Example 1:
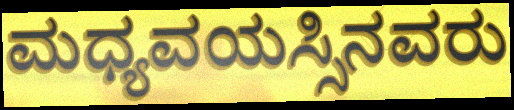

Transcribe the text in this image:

ಮಧ್ಯವಯಸ್ಸಿನವರು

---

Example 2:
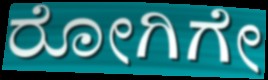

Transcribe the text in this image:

ರೋಗಿಗೇ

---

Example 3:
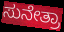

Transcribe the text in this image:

ಸುನೇತ್ರಾ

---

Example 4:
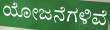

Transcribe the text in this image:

ಯೋಜನೆಗಳಿವೆ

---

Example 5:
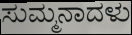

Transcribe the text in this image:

ಸುಮ್ಮನಾದಳು